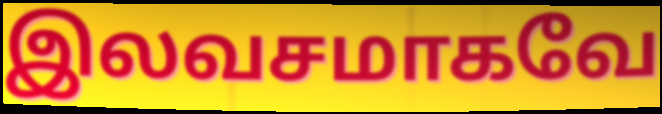
இலவசமாகவே